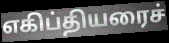
எகிப்தியரைச்